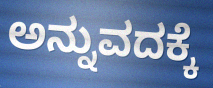
ಅನ್ನುವದಕ್ಕೆ